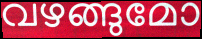
വഴങ്ങുമോ